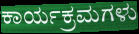
ಕಾರ್ಯಕ್ರಮಗಳು